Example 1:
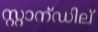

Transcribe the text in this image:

സ്റ്റാന്ഡില്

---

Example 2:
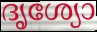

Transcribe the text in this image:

ദൃശ്യോ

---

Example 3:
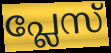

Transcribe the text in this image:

പ്ലേസ്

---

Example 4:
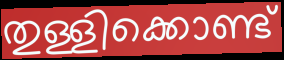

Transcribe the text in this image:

തുള്ളിക്കൊണ്ട്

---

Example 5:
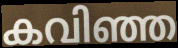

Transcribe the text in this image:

കവിഞ്ഞ